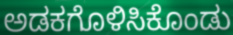
ಅಡಕಗೊಳಿಸಿಕೊಂಡು